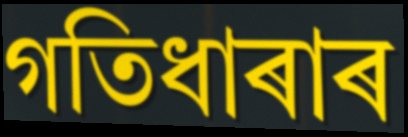
গতিধাৰাৰ